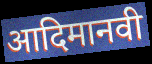
आदिमानवी